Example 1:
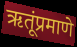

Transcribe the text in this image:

ऋतूंप्रमाणे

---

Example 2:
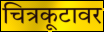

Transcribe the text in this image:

चित्रकूटावर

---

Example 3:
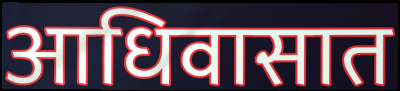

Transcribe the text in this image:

आधिवासात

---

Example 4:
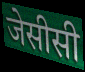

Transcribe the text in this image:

जेसीसी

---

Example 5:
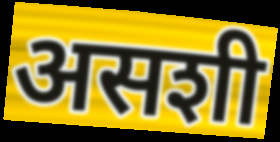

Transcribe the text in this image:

असशी